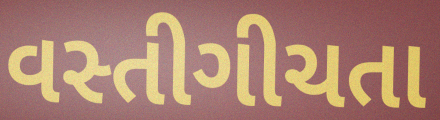
વસ્તીગીચતા